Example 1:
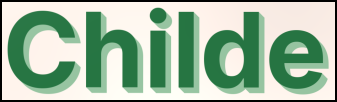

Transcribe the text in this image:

Childe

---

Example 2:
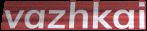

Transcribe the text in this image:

vazhkai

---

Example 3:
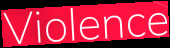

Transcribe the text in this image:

Violence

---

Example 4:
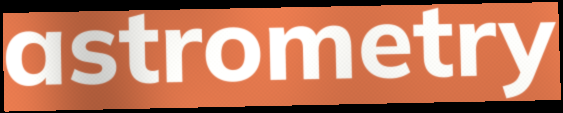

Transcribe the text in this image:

astrometry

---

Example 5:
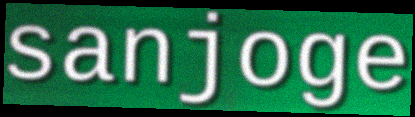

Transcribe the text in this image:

sanjoge